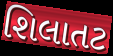
શિલાતટ